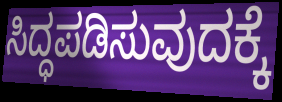
ಸಿದ್ಧಪಡಿಸುವುದಕ್ಕೆ